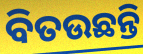
ବିତଉଛନ୍ତି